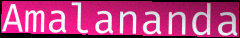
Amalananda